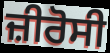
ਜ਼ੀਰੋਸੀ